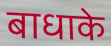
बाधाके